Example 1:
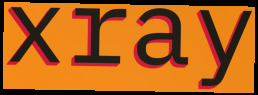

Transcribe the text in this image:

xray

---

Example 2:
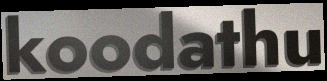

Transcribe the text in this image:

koodathu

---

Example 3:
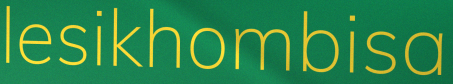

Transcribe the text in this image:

lesikhombisa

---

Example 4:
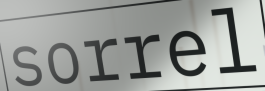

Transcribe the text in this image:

sorrel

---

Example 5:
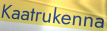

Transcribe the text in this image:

Kaatrukenna